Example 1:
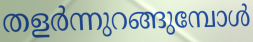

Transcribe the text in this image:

തളർന്നുറങ്ങുമ്പോൾ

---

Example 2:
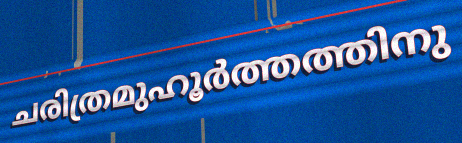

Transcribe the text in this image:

ചരിത്രമുഹൂർത്തത്തിനു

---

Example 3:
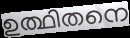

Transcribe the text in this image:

ഉത്ഥിതനെ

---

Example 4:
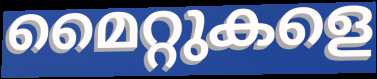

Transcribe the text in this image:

മൈറ്റുകളെ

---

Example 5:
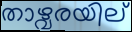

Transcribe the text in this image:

താഴ്വരയില്